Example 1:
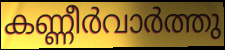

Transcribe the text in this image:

കണ്ണീർവാർത്തു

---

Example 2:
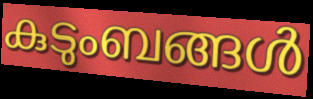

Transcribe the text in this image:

കുടുംബങ്ങൾ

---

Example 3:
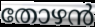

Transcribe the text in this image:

തോഴൻ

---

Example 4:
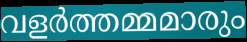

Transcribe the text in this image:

വളർത്തമ്മമാരും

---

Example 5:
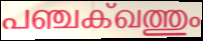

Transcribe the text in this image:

പഞ്ചക്ഖത്തും